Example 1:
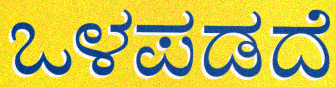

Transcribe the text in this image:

ಒಳಪಡದೆ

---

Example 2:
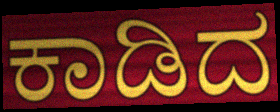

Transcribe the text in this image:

ಕಾಡಿದ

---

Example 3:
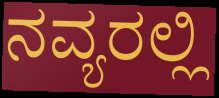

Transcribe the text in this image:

ನವ್ಯರಲ್ಲಿ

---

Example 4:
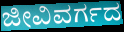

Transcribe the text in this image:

ಜೀವಿವರ್ಗದ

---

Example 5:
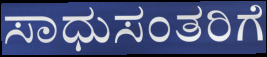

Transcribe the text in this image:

ಸಾಧುಸಂತರಿಗೆ